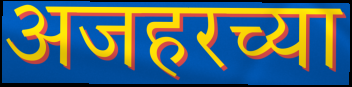
अजहरच्या